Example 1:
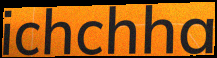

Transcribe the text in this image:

ichchha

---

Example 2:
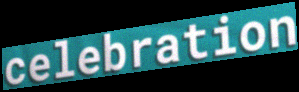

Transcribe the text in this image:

celebration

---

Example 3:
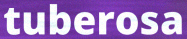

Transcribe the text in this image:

tuberosa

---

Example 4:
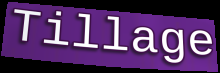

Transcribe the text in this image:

Tillage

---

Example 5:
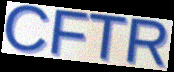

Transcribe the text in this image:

CFTR